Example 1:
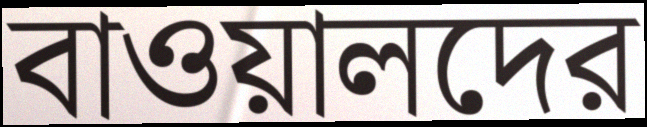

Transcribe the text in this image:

বাওয়ালদের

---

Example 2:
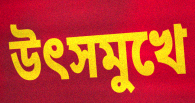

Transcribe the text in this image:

উৎসমুখে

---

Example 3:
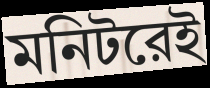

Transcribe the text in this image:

মনিটরেই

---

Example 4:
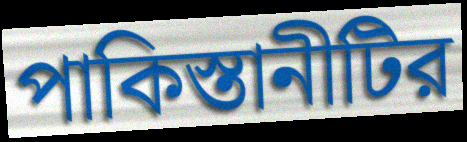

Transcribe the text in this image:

পাকিস্তানীটির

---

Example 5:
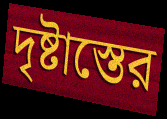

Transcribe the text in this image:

দৃষ্টাস্তের